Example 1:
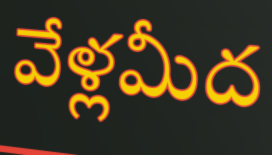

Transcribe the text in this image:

వేళ్లమీద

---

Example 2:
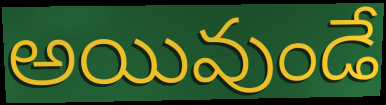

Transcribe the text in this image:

అయివుండే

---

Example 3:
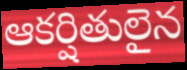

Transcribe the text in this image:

ఆకర్షితులైన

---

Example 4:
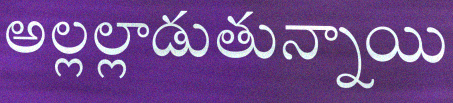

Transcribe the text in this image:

అల్లల్లాడుతున్నాయి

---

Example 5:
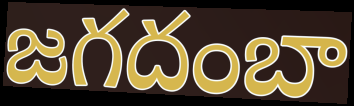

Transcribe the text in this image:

జగదంబా